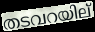
തടവറയില്